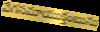
వేగసమాయుక్తంబును